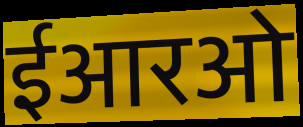
ईआरओ